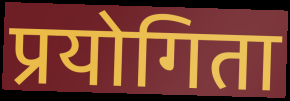
प्रयोगिता